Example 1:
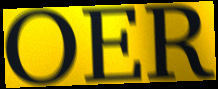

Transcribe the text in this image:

OER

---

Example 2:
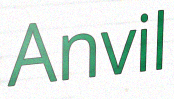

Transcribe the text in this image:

Anvil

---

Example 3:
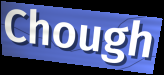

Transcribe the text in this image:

Chough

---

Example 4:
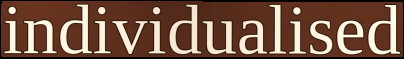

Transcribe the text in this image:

individualised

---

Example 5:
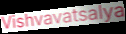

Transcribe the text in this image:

Vishvavatsalya